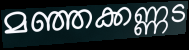
മഞ്ഞക്കണ്ണട